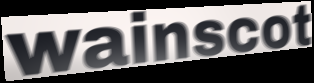
wainscot